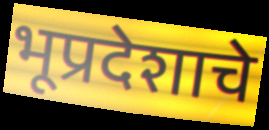
भूप्रदेशाचे